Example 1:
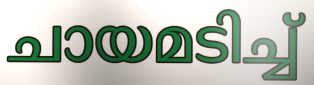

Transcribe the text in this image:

ചായമടിച്ച്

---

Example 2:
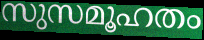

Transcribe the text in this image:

സുസമൂഹതം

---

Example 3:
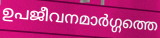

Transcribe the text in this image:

ഉപജീവനമാർഗ്ഗത്തെ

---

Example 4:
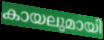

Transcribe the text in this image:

കായലുമായി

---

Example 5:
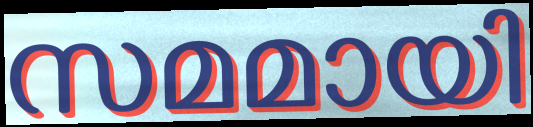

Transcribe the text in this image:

സമമായി